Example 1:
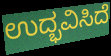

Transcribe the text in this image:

ಉದ್ಭವಿಸಿದೆ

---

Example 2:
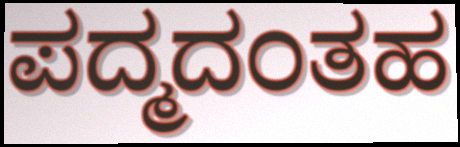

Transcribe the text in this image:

ಪದ್ಮದಂತಹ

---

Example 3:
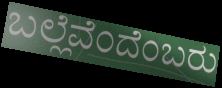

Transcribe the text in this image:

ಬಲ್ಲೆವೆಂದೆಂಬರು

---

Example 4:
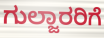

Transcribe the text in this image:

ಗುಲ್ಜಾರರಿಗೆ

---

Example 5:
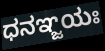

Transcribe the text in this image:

ಧನಞ್ಜಯಃ